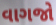
વાગજો